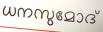
ധനസുമോദ്